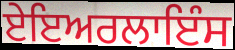
ਏਇਅਰਲਾਇੰਸ